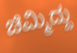
ಚಿಮ್ಮಿದ್ದು